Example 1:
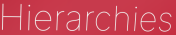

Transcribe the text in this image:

Hierarchies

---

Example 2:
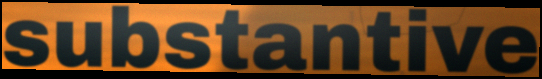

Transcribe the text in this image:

substantive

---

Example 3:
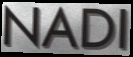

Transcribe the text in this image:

NADI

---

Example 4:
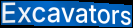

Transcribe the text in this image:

Excavators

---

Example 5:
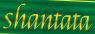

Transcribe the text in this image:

shantata